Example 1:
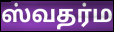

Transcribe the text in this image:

ஸ்வதர்ம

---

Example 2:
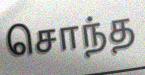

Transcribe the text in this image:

சொந்த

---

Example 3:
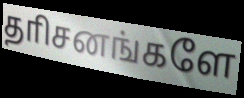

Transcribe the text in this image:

தரிசனங்களே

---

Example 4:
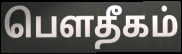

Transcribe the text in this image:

பௌதீகம்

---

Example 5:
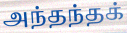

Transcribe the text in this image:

அந்தந்தக்